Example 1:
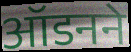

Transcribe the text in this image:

ऑडनने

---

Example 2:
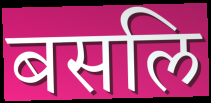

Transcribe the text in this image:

बसलि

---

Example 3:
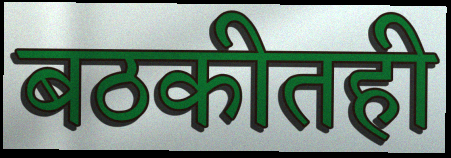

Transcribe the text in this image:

बठकीतही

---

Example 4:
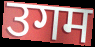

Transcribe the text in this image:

उगम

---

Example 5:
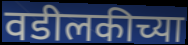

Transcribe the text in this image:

वडीलकीच्या